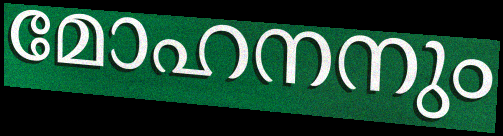
മോഹനനും